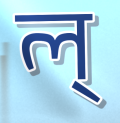
ল্